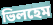
ভিলহেম